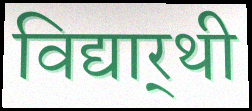
विद्यार्थी